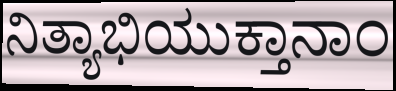
ನಿತ್ಯಾಭಿಯುಕ್ತಾನಾಂ